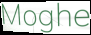
Moghe